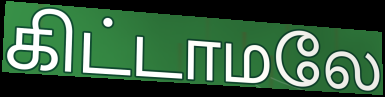
கிட்டாமலே